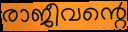
രാജീവന്റെ